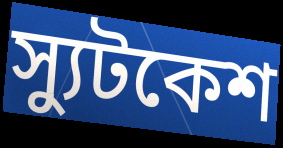
স্যুটকেশ